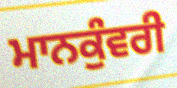
ਮਾਨਕੁੰਵਰੀ